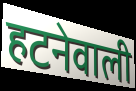
हटनेवाली